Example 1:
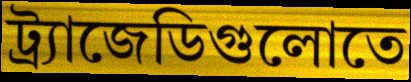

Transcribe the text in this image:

ট্র্যাজেডিগুলোতে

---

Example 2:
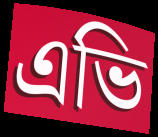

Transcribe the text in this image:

এভি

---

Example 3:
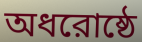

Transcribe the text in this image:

অধরোষ্ঠে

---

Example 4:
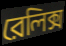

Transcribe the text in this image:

রেলিক্স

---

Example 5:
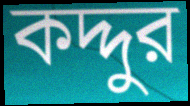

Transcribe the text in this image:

কদ্দুর